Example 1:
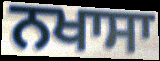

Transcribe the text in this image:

ਨਖਾਸਾ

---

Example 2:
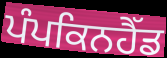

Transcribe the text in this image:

ਪੰਪਕਿਨਹੈੱਡ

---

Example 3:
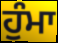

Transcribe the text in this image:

ਹੁੰਮਾ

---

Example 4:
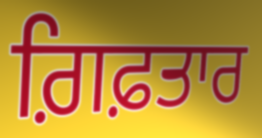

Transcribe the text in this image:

ਗ਼ਿਫ਼ਤਾਰ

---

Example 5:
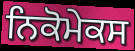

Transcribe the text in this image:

ਨਿਕੋਮੇਕਸ